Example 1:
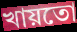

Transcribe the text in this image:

খায়তো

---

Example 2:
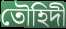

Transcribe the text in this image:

তৌহিদী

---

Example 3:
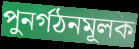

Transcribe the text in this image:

পুনর্গঠনমূলক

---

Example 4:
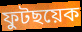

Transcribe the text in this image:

ফুটছয়েক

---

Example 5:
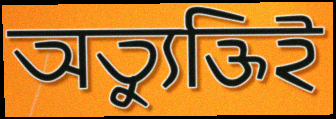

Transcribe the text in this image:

অত্যুক্তিই